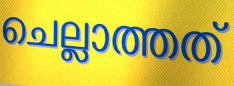
ചെല്ലാത്തത്